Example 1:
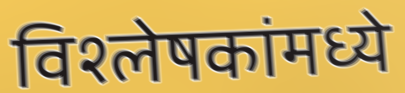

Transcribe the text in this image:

विश्लेषकांमध्ये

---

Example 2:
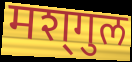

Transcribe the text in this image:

मश्गुल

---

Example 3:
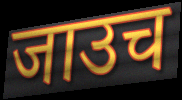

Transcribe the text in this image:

जाउच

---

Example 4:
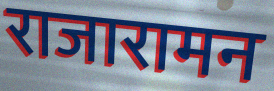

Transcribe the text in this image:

राजारामन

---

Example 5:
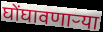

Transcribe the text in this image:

घोंघावणाऱ्या